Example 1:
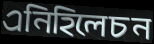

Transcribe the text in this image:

এনিহিলেচন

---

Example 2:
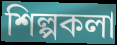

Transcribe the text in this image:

শিল্পকলা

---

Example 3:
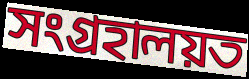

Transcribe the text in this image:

সংগ্ৰহালয়ত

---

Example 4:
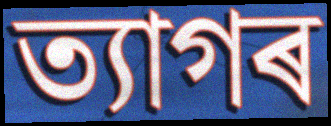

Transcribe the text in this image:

ত্যাগৰ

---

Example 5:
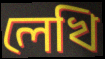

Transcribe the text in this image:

লেখি